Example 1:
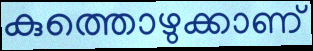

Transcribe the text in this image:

കുത്തൊഴുക്കാണ്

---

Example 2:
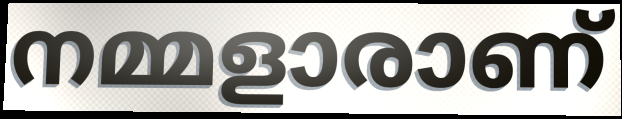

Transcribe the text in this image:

നമ്മളാരാണ്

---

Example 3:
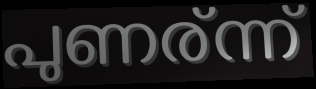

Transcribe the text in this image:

പുണര്ന്ന്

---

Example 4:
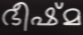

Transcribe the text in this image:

ഭീഷ്മ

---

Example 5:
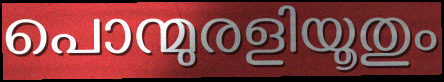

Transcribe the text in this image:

പൊന്മുരളിയൂതും